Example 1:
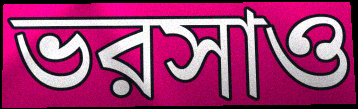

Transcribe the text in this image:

ভরসাও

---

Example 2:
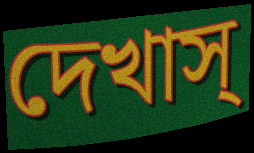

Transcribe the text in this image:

দেখাস্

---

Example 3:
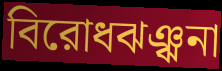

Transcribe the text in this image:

বিরোধঝঞ্ঝনা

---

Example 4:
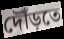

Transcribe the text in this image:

দৌঁড়তে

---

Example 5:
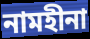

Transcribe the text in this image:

নামহীনা